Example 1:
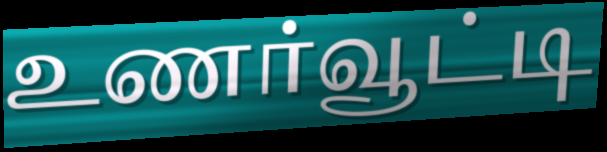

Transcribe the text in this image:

உணர்வூட்டி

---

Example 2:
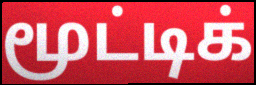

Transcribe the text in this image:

மூட்டிக்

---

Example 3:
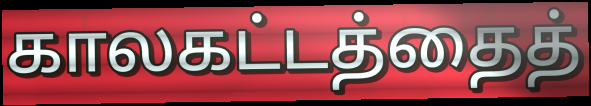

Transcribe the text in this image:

காலகட்டத்தைத்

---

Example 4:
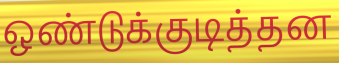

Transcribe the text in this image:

ஒண்டுக்குடித்தன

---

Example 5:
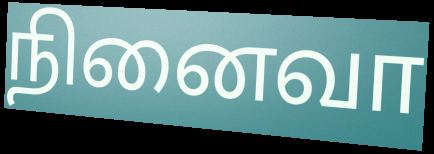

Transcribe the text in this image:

நினைவா